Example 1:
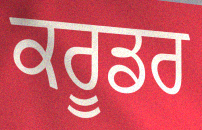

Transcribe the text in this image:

ਕਰੂਡਰ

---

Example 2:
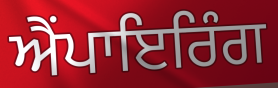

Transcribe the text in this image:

ਐਂਪਾਇਰਿੰਗ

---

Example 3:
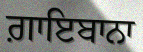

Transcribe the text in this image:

ਗ਼ਾਇਬਾਨਾ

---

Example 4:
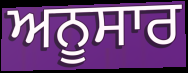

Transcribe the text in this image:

ਅਨੂਸਾਰ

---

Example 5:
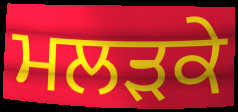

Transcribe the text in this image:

ਮਲੜਕੇ